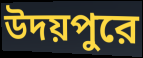
উদয়পুরে